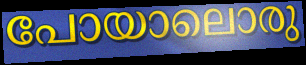
പോയാലൊരു